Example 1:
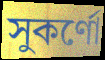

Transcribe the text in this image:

সুকর্ণো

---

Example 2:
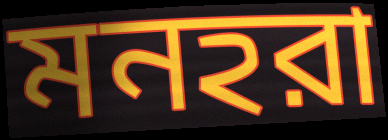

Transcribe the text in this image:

মনহরা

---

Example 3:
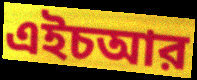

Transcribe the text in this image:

এইচআর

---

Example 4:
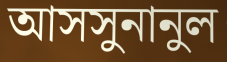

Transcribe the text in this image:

আসসুনানুল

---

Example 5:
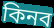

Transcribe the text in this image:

কিনব